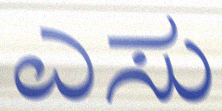
ಎಸು